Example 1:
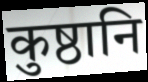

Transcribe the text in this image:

कुष्ठानि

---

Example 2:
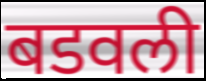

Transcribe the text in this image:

बडवली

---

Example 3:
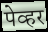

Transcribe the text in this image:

पेव्हर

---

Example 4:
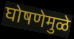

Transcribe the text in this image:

घोषणेमुळे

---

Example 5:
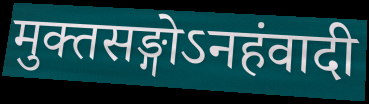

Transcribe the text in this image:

मुक्तसङ्गोऽनहंवादी